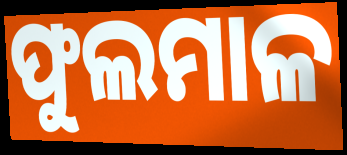
ଫୁଲମାଳ